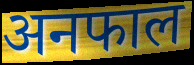
अनफाल